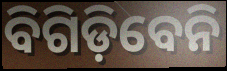
ବିଗିଡ଼ିବେନି